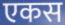
एकस